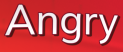
Angry